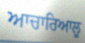
ਆਚਾਰਿਆਲੂ